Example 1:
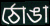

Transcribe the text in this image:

ঠোঙা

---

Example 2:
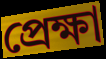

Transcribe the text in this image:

প্ৰেক্ষা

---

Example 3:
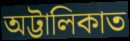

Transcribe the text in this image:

অট্টালিকাত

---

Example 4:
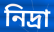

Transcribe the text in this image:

নিদ্ৰা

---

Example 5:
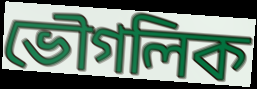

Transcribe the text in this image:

ভৌগলিক